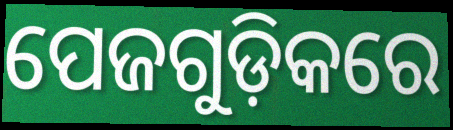
ପେଜଗୁଡ଼ିକରେ